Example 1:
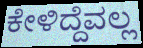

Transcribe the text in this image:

ಕೇಳಿದ್ದೆವಲ್ಲ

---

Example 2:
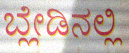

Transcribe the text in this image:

ಬ್ಲೇಡಿನಲ್ಲಿ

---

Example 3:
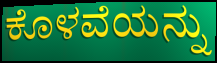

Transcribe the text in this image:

ಕೊಳವೆಯನ್ನು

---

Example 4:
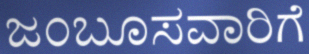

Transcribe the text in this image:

ಜಂಬೂಸವಾರಿಗೆ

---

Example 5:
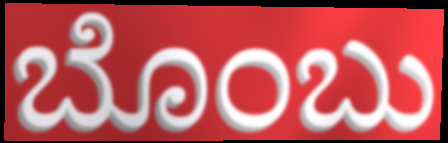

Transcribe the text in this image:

ಬೊಂಬು